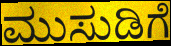
ಮುಸುಡಿಗೆ